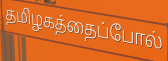
தமிழகத்தைப்போல்